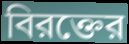
বিরক্তের